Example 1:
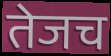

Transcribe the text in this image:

तेजच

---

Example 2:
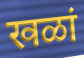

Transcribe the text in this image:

खळां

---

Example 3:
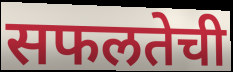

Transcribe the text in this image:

सफलतेची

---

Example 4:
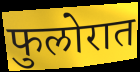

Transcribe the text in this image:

फुलोरात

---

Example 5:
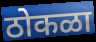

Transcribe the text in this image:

ठोकळा